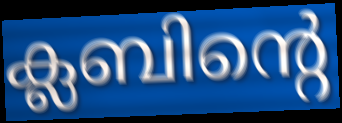
ക്ലബിന്റെ